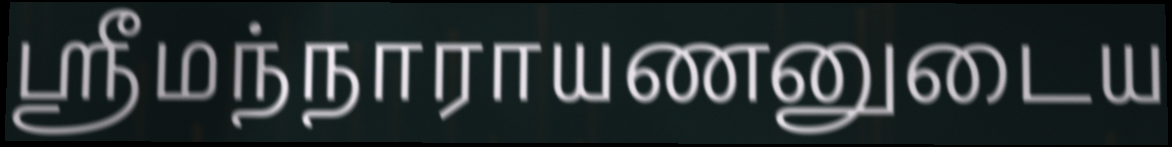
ஸ்ரீமந்நாராயணனுடைய